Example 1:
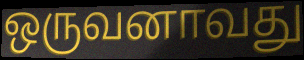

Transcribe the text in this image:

ஒருவனாவது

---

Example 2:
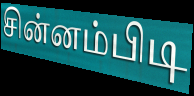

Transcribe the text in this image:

சின்னம்பிடி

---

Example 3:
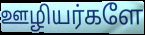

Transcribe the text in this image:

ஊழியர்களே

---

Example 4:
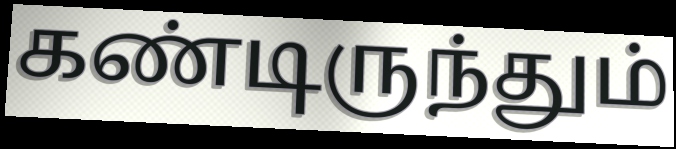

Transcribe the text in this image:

கண்டிருந்தும்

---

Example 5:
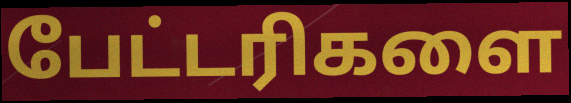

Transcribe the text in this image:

பேட்டரிகளை